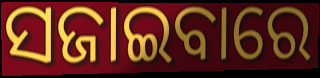
ସଜାଇବାରେ